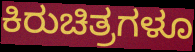
ಕಿರುಚಿತ್ರಗಳೂ